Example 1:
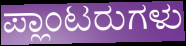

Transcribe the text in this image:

ಪ್ಲಾಂಟರುಗಳು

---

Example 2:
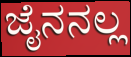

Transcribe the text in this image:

ಜೈನನಲ್ಲ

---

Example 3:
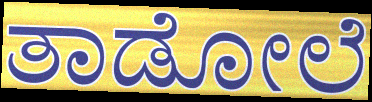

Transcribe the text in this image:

ತಾಡೋಲೆ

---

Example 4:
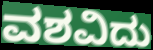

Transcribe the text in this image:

ವಶವಿದು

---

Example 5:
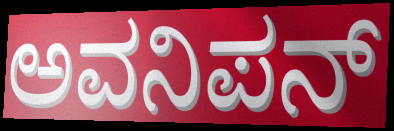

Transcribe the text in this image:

ಅವನಿಪನ್